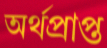
অর্থপ্রাপ্ত